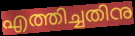
എത്തിച്ചതിനു